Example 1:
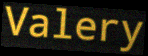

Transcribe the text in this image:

Valery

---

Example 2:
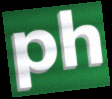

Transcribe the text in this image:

ph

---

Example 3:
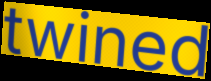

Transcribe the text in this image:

twined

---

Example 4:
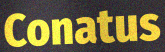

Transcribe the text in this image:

Conatus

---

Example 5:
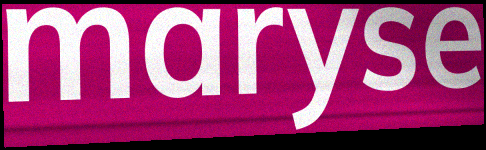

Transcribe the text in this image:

maryse